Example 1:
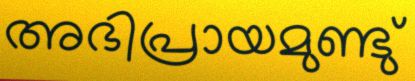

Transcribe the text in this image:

അഭിപ്രായമുണ്ടു്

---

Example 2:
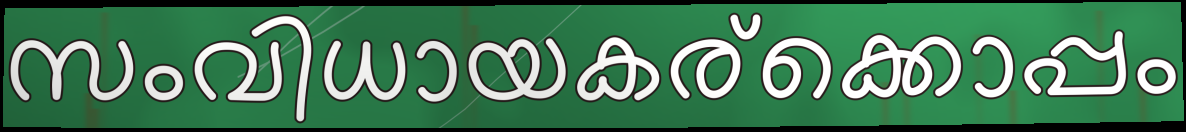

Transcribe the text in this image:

സംവിധായകര്ക്കൊപ്പം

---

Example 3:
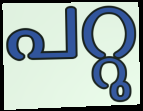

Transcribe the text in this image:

പറ്റു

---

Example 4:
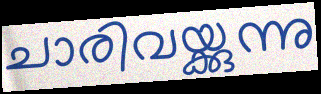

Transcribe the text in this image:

ചാരിവയ്ക്കുന്നു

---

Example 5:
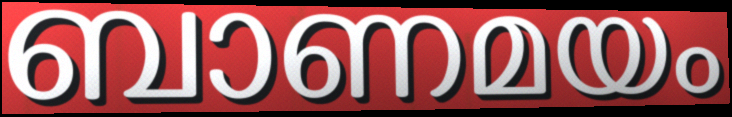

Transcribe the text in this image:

ബാണമയം